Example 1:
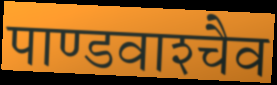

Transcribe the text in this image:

पाण्डवाश्चैव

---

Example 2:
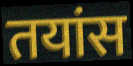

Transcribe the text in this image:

तयांस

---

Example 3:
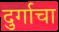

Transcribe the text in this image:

दुर्गाचा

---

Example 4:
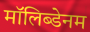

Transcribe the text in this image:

मॉलिब्डेनम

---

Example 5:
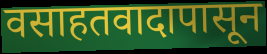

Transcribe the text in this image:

वसाहतवादापासून